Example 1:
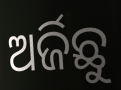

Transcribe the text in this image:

ଅର୍ଜିଛୁ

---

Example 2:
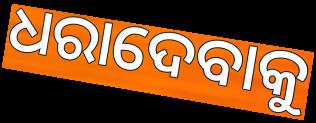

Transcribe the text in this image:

ଧରାଦେବାକୁ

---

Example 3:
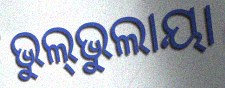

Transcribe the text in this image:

ଭୁଲ୍‌ଭୁଲାୟା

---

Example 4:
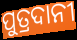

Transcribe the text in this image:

ପୁତ୍ରଦାନୀ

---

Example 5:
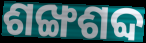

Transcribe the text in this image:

ଶଙ୍ଖଶବ୍ଦ